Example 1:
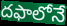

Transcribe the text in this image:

దఫాలోనే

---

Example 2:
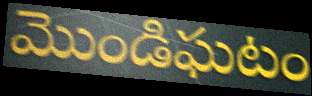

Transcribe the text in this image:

మొండిఘటం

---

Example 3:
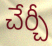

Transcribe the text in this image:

చేర్చీ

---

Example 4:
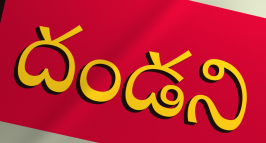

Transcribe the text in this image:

దండని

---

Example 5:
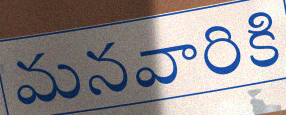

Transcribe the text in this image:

మనవారికి